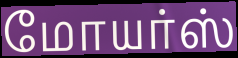
மோயர்ஸ்